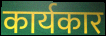
कार्यकार